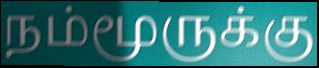
நம்மூருக்கு